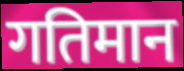
गतिमान